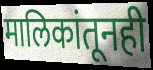
मालिकांतूनही